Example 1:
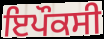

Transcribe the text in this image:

ਇਪੌਕਸੀ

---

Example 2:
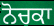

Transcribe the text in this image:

ਨੋਚਕਾ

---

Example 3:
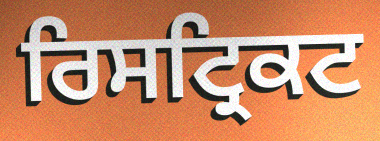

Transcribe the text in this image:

ਰਿਸਟ੍ਰਿਕਟ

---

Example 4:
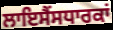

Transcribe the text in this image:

ਲਾਇਸੈਂਸਧਾਰਕਾਂ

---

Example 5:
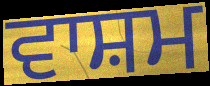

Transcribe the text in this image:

ਵਾਸ਼ਮ